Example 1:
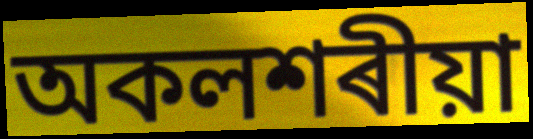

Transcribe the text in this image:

অকলশৰীয়া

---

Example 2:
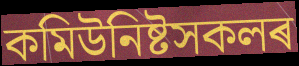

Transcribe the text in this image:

কমিউনিষ্টসকলৰ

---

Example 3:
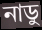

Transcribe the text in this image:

নাডু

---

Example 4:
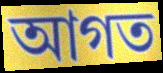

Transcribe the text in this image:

আগত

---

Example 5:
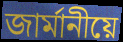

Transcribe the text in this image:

জাৰ্মানীয়ে